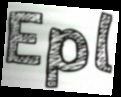
Epl